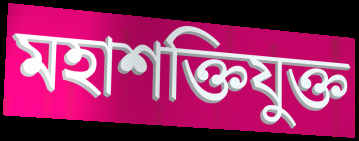
মহাশক্তিযুক্ত